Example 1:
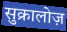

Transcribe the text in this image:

सुक्रालोज़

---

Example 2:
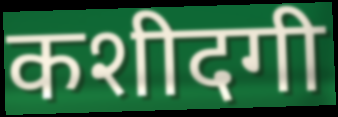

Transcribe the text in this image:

कशीदगी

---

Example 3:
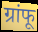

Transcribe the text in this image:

ग्रांफू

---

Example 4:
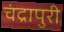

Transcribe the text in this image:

चंद्रापुरी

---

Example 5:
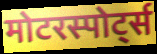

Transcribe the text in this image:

मोटरस्पोर्ट्स